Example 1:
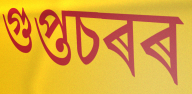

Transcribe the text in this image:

গুপ্তচৰৰ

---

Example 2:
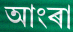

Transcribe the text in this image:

আংৰা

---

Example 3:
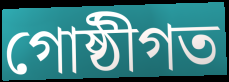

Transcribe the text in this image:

গোষ্ঠীগত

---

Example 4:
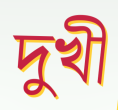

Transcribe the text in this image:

দুখী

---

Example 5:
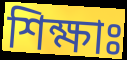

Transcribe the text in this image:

শিক্ষাঃ